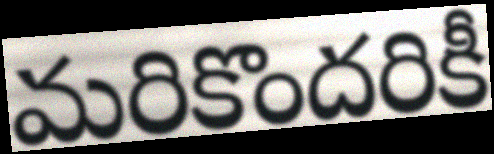
మరికొందరికీ